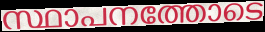
സ്ഥാപനത്തോടെ